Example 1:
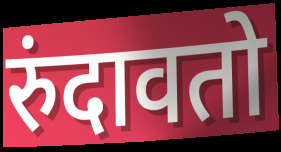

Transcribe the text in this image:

रुंदावतो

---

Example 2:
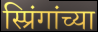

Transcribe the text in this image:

स्प्रिंगांच्या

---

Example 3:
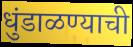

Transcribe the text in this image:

धुंडाळण्याची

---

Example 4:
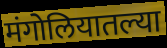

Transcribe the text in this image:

मंगोलियातल्या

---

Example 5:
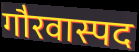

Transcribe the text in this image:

गौरवास्पद